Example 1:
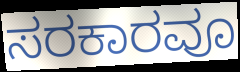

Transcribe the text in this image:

ಸರಕಾರವೂ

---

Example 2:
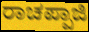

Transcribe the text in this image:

ರಾಚಪ್ಪಾಜಿ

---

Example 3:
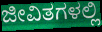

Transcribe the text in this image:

ಜೀವಿತಗಳಲ್ಲಿ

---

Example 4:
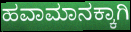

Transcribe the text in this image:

ಹವಾಮಾನಕ್ಕಾಗಿ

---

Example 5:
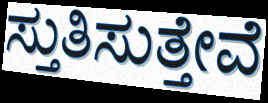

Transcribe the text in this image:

ಸ್ತುತಿಸುತ್ತೇವೆ